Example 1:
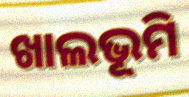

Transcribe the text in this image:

ଖାଲଭୂମି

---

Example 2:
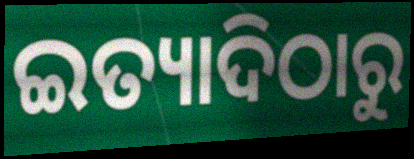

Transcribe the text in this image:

ଇତ୍ୟାଦିଠାରୁ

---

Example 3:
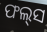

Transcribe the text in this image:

ଫଲ୍‌ସ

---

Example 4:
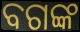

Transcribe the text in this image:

ବଗଙ୍କ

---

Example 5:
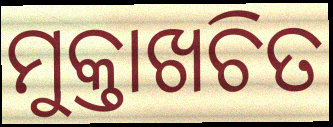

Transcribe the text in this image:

ମୁକ୍ତାଖଚିତ